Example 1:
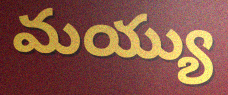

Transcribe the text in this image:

మయ్యు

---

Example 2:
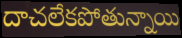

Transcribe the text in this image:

దాచలేకపోతున్నాయి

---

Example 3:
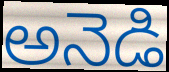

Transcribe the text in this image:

అనెడి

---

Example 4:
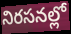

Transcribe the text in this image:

నిరసనల్లో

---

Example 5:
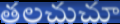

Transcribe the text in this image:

తలచుచూ